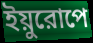
ইয়ুরোপে